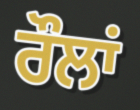
ਰੌਲਾਂ